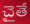
చైతే